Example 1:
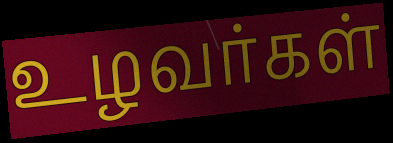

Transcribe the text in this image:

உழவர்கள்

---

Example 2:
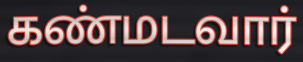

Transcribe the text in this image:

கண்மடவார்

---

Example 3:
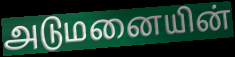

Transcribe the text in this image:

அடுமனையின்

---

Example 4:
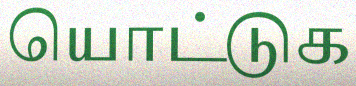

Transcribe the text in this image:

யொட்டுக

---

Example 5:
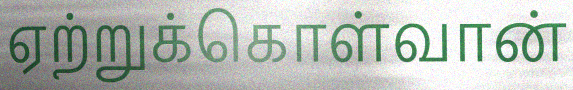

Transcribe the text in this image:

ஏற்றுக்கொள்வான்